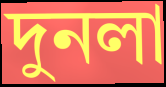
দুনলা